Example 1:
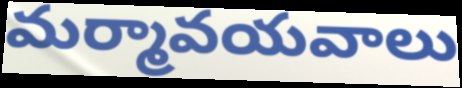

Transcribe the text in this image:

మర్మావయవాలు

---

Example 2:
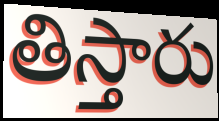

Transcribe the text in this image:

తిస్తారు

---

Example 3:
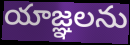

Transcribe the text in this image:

యాజ్ఞలను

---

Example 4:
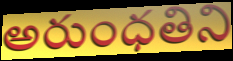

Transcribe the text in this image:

అరుంధతిని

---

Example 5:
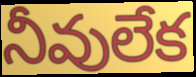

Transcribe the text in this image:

నీవులేక